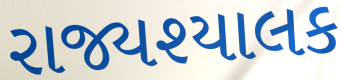
રાજ્યશ્યાલક